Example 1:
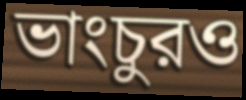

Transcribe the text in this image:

ভাংচুরও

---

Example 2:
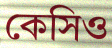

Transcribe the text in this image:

কেসিও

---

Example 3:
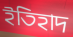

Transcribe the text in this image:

ইতিহাদ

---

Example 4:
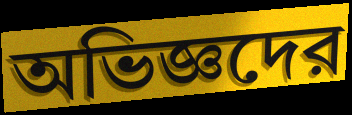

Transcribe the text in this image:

অভিজ্ঞদের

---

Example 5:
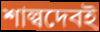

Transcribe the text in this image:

শাল্বদেবই